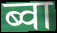
ब्वा